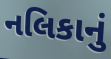
નલિકાનું